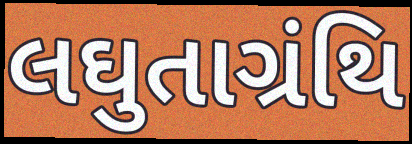
લઘુતાગ્રંથિ